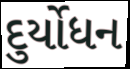
દુર્યોધન